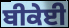
ਬੀਕੇਈ